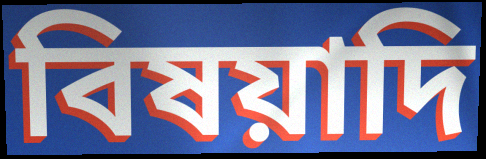
বিষয়াদি